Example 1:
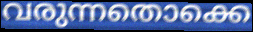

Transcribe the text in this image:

വരുന്നതൊക്കെ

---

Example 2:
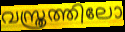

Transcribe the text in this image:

വസ്ത്രത്തിലോ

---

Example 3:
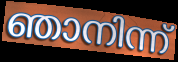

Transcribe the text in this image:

ഞാനിന്ന്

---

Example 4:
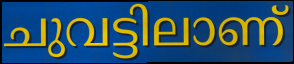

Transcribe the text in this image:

ചുവട്ടിലാണ്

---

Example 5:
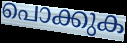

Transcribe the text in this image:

പൊക്കുക